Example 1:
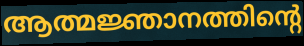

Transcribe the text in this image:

ആത്മജ്ഞാനത്തിന്റെ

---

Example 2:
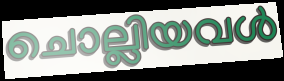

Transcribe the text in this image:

ചൊല്ലിയവൾ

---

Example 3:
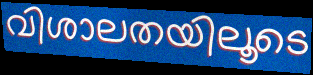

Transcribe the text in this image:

വിശാലതയിലൂടെ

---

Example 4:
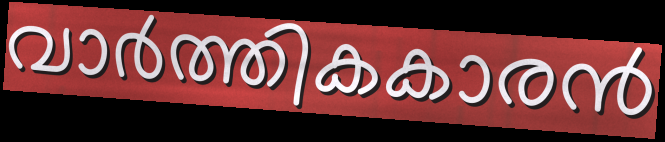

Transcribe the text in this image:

വാർത്തികകാരൻ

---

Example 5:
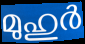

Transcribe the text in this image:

മുഹുർ